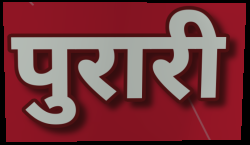
पुरारी